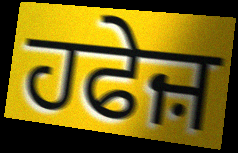
ਹਫੇਜ਼